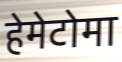
हेमेटोमा